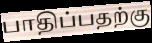
பாதிப்பதற்கு